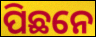
ପିଛନେ